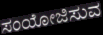
ಸಂಯೋಜಿಸುವ